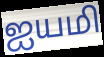
ஐயமி